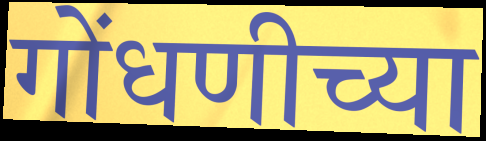
गोंधणीच्या